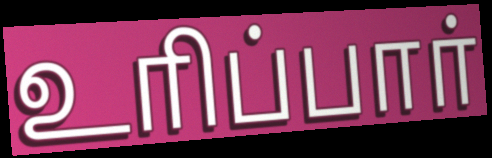
உரிப்பார்